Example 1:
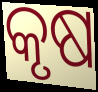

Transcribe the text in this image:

କୃଷ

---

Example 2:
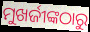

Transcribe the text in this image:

ମୁଖର୍ଜୀଙ୍କଠାରୁ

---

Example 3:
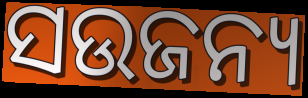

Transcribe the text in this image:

ସଉଜନ୍ୟ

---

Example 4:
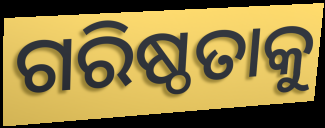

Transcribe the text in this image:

ଗରିଷ୍ଠତାକୁ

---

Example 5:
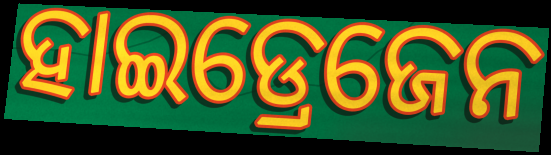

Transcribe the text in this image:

ହାଇଡ୍ରେଜେନ